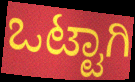
ಒಟ್ಟಾಗಿ